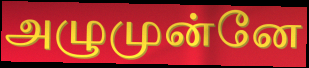
அழுமுன்னே